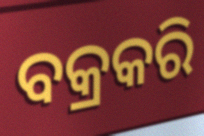
ବକ୍ରକରି